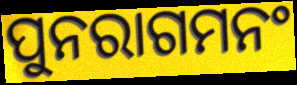
ପୁନରାଗମନଂ